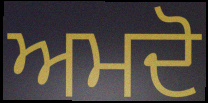
ਅਮਦੋ